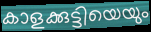
കാളക്കുട്ടിയെയും